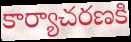
కార్యాచరణకి